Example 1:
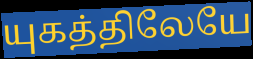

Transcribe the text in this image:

யுகத்திலேயே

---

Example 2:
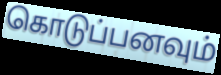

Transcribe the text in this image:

கொடுப்பனவும்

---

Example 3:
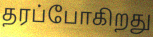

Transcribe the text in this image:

தரப்போகிறது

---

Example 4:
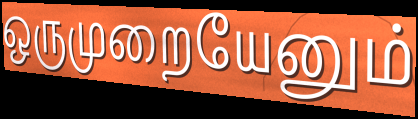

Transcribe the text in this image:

ஒருமுறையேனும்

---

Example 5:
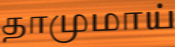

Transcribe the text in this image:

தாமுமாய்